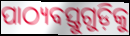
ପାଠ୍ୟବସ୍ତୁଗୁଡ଼ିକୁ